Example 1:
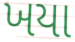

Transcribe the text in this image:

ખયા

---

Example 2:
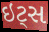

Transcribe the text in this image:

ઇટ્સ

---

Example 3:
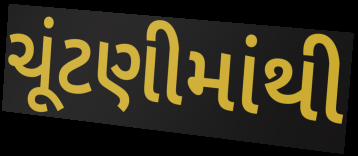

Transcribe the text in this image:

ચૂંટણીમાંથી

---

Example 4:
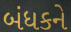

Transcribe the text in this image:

બંધકને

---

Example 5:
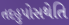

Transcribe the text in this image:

તદહુપોસથેતિ